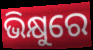
ଭିକ୍ଷୁରେ